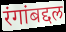
रंगांबद्दल